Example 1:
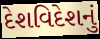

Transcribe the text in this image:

દેશવિદેશનું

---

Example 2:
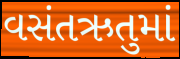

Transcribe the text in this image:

વસંતઋતુમાં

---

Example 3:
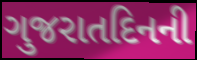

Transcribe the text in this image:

ગુજરાતદિનની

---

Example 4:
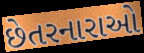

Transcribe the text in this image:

છેતરનારાઓ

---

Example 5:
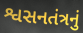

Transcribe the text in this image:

શ્વસનતંત્રનું